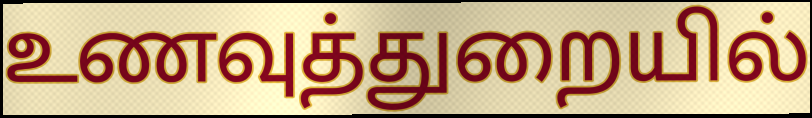
உணவுத்துறையில்